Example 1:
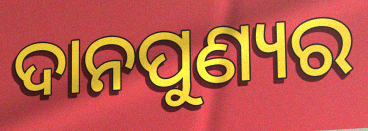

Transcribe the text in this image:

ଦାନପୁଣ୍ୟର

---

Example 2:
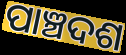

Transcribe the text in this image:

ପାଞ୍ଚଦଶ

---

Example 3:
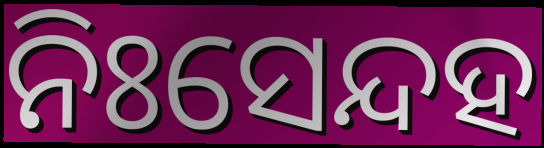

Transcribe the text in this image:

ନିଃସେନ୍ଦହ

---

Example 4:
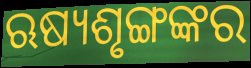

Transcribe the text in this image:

ଋଷ୍ୟଶୃଙ୍ଗଙ୍କର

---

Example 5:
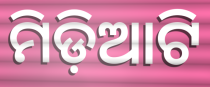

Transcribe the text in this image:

ମିଡ଼ିଆଟି